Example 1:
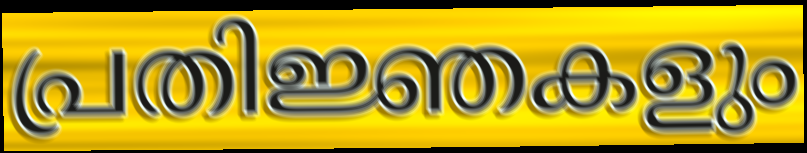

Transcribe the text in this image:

പ്രതിജ്ഞകളും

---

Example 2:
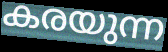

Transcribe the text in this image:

കരയുന്ന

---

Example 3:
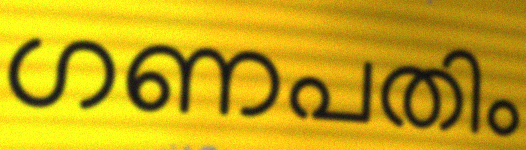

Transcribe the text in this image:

ഗണപതിം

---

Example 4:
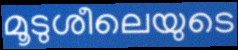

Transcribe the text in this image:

മൂടുശീലെയുടെ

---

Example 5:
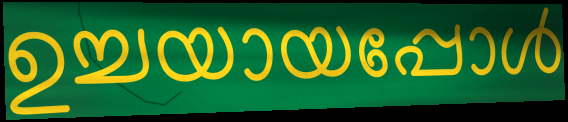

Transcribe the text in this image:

ഉച്ചയായപ്പോൾ